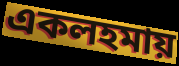
একলহমায়